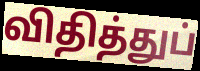
விதித்துப்